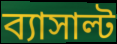
ব্যাসাল্ট